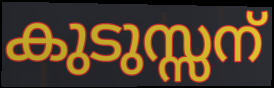
കുടുസ്സന്